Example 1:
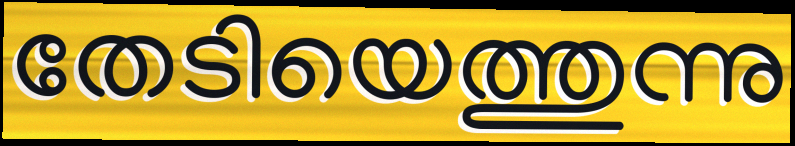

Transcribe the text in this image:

തേടിയെത്തുന്നു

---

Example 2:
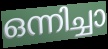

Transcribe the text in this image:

ഒന്നിച്ചാ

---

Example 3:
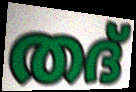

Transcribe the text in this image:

തദ്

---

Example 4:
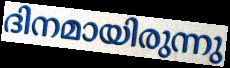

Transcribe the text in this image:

ദിനമായിരുന്നു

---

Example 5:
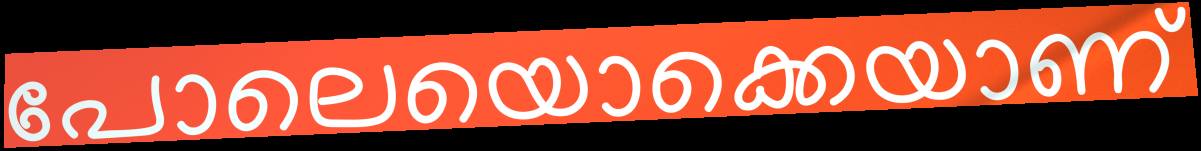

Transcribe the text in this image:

പോലെയൊക്കെയാണ്